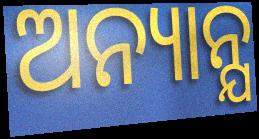
ଅନ୍ୟାନ୍ଯ